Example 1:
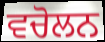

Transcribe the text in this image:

ਵਚੋਲਨ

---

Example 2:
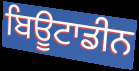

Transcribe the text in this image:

ਬਿਊਟਾਡੀਨ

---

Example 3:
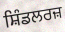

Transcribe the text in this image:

ਸ਼ਿੰਡਲਰਜ਼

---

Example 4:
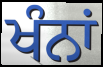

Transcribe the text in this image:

ਖੰਨਾਂ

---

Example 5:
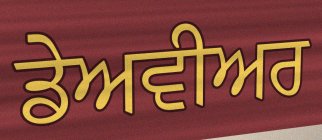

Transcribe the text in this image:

ਡੇਅਵੀਅਰ